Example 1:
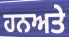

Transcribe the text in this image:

ਹਨਅਤੇ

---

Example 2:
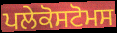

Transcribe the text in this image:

ਪਲੇਕੋਸਟੋਮਸ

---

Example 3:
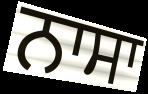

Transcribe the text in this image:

ਨਾਸਾ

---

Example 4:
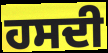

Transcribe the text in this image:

ਹਸਦੀ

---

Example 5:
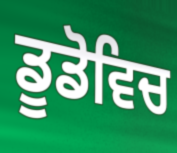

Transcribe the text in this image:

ਡੂਡੋਵਿਚ